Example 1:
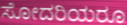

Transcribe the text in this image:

ಸೋದರಿಯರೂ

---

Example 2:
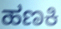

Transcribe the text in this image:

ಹಣಕಿ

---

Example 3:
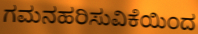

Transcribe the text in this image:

ಗಮನಹರಿಸುವಿಕೆಯಿಂದ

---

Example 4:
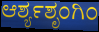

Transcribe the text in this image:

ಆರ್ಶ್ಯಶೃಂಗಿಂ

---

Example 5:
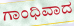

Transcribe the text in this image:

ಗಾಂಧಿವಾದ